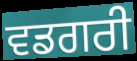
ਵਡਗਰੀ